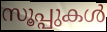
സൂപ്പുകൾ